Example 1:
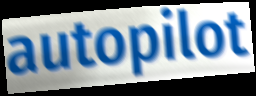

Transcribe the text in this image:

autopilot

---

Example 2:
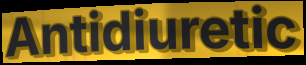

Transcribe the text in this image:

Antidiuretic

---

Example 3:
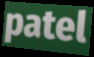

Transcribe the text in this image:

patel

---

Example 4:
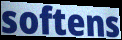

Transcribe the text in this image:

softens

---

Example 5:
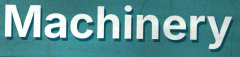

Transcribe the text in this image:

Machinery